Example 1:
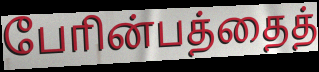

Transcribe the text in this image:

பேரின்பத்தைத்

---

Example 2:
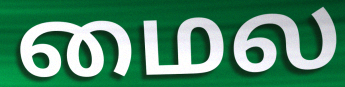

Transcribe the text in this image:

மைல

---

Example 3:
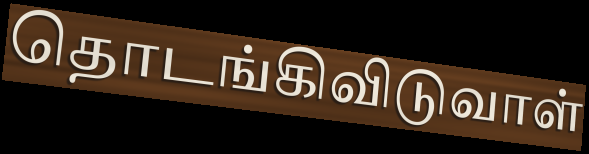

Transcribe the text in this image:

தொடங்கிவிடுவாள்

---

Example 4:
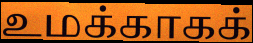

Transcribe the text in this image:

உமக்காகக்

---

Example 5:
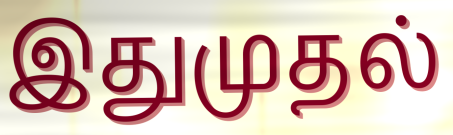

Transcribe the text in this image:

இதுமுதல்